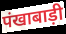
पंखाबाड़ी